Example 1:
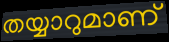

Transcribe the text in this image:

തയ്യാറുമാണ്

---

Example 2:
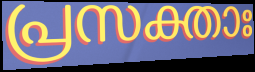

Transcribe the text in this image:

പ്രസക്താഃ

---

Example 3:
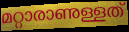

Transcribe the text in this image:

മറ്റാരാണുള്ളത്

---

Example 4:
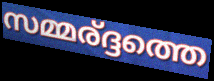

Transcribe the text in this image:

സമ്മര്ദ്ദത്തെ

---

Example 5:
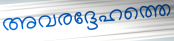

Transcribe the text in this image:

അവരദ്ദേഹത്തെ